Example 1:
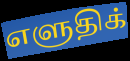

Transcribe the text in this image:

எளுதிக்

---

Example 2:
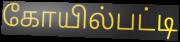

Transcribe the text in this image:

கோயில்பட்டி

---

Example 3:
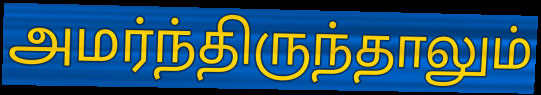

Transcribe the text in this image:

அமர்ந்திருந்தாலும்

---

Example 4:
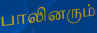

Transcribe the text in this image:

பாலினரும்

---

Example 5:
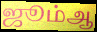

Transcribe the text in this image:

ஜூம்ஆ